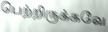
பெற்றிருக்கவே